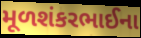
મૂળશંકરભાઈના